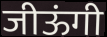
जीऊंगी